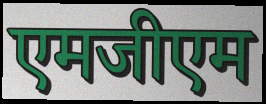
एमजीएम